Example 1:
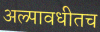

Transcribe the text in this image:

अल्पावधीतच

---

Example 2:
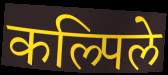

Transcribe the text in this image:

कल्पिले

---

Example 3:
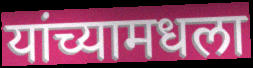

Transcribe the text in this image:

यांच्यामधला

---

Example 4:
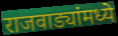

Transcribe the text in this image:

राजवाड्यांमध्ये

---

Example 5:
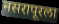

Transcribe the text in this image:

नसरापूरला